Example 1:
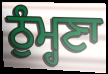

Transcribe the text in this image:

ਠੁੰਮ੍ਹਣਾ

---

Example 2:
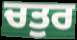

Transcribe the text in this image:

ਚਤੁਰ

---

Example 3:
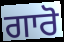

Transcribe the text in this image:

ਗਾਰੋ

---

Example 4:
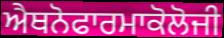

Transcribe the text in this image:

ਐਥਨੋਫਾਰਮਾਕੋਲੋਜੀ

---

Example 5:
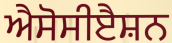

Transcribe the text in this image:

ਐਸੋਸੀੲੈਸ਼ਨ